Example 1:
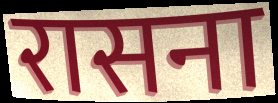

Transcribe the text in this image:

रासना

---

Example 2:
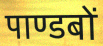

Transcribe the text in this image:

पाण्डबों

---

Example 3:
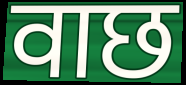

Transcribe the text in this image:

वाछ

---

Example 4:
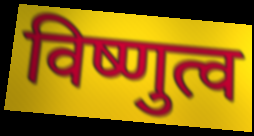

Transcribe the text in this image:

विष्णुत्व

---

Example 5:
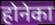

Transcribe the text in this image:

होनेका